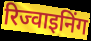
रिज्वाइनिंग